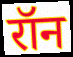
रॉन